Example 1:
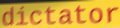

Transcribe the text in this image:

dictator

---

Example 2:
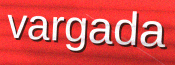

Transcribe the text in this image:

vargada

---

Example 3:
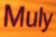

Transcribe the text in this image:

Muly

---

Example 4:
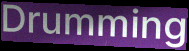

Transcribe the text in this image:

Drumming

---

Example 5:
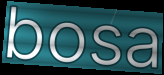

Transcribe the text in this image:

bosa